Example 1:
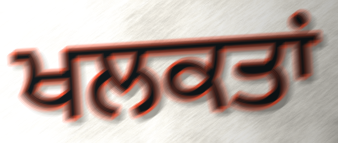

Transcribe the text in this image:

ਖਲਕਤਾਂ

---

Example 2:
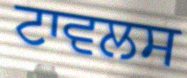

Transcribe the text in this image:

ਟਾਵਲਸ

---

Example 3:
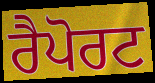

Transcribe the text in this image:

ਰੈਪੋਰਟ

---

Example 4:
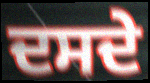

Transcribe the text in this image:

ਦਸਦੇ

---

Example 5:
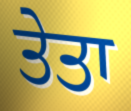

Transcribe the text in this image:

ਤੇਤਾ